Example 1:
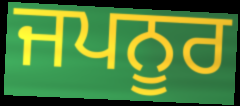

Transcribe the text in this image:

ਜਪਨੂਰ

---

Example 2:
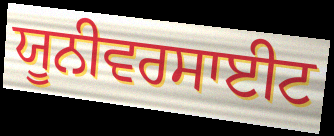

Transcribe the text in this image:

ਯੂਨੀਵਰਸਾਈਟ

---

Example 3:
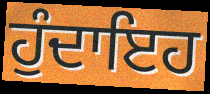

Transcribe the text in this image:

ਹੁੰਦਾਇਹ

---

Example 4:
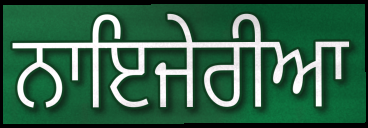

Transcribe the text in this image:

ਨਾਇਜੇਰੀਆ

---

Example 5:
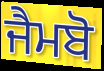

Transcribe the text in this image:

ਜੈਮਬੋ